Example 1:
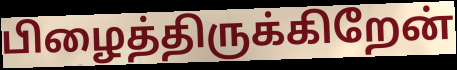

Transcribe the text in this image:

பிழைத்திருக்கிறேன்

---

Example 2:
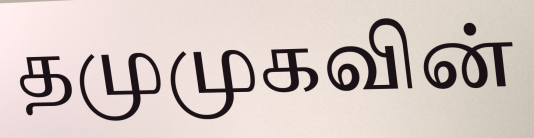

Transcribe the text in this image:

தமுமுகவின்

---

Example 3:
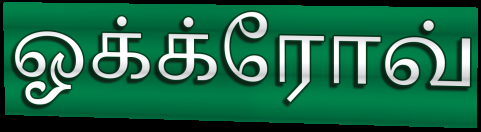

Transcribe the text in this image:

ஓக்க்ரோவ்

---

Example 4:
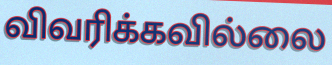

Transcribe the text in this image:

விவரிக்கவில்லை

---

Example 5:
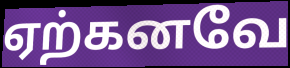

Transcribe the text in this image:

ஏற்கனவே